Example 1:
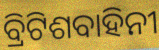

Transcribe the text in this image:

ବ୍ରିଟିଶବାହିନୀ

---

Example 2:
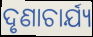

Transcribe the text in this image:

ଦୃଣାଚାର୍ଯ୍ୟ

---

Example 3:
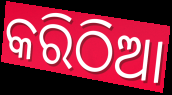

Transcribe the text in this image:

କରିଠିଆ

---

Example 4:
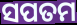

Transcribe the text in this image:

ସପତମ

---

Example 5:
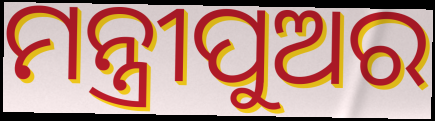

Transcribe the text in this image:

ମନ୍ତ୍ରୀପୁଅର